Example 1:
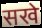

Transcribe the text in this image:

सखे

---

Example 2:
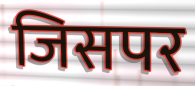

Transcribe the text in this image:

जिसपर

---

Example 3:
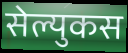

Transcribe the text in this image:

सेल्युकस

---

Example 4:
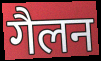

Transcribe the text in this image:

गैलन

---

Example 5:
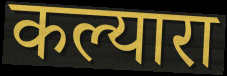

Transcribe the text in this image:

कल्यारा